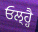
ਓਲ੍ਹ੍ਹੈ